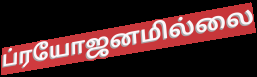
ப்ரயோஜனமில்லை